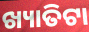
ଖ୍ୟାତିଟା